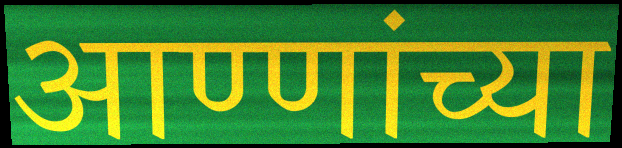
आण्णांच्या